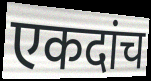
एकदांच